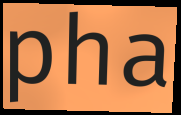
pha